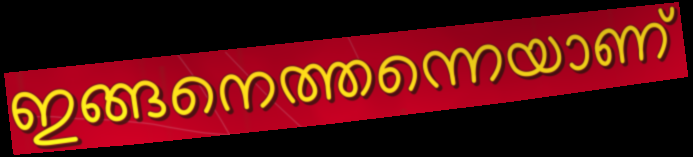
ഇങ്ങനെത്തന്നെയാണ്